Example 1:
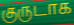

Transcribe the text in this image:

குருடாக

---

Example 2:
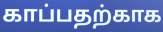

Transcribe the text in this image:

காப்பதற்காக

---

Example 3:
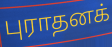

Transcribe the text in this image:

புராதனக்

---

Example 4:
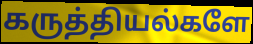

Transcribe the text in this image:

கருத்தியல்களே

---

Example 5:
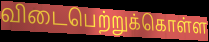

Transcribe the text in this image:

விடைபெற்றுக்கொள்ள